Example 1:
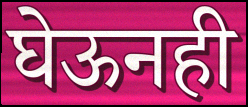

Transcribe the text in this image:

घेऊनही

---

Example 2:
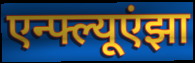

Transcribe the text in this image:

एन्फ्ल्यूएंझा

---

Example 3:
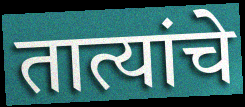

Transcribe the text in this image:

तात्यांचे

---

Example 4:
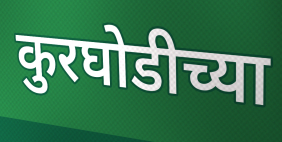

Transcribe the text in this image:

कुरघोडीच्या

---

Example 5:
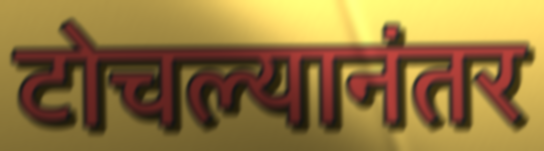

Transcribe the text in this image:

टोचल्यानंतर